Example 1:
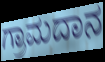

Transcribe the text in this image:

ಗ್ರಾಮದಾನ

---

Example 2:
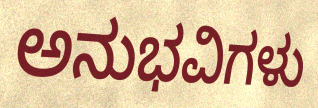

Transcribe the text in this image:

ಅನುಭವಿಗಳು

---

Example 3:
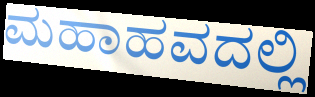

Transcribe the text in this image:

ಮಹಾಹವದಲ್ಲಿ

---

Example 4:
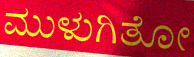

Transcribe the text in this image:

ಮುಳುಗಿತೋ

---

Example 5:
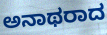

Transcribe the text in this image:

ಅನಾಥರಾದ